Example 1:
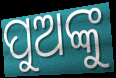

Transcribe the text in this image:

ପୁଅଙ୍କୁ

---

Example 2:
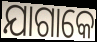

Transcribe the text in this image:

ଯାଗାକେ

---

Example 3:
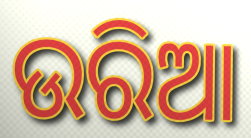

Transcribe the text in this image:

ଉରିଆ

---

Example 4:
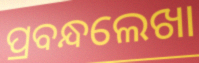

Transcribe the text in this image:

ପ୍ରବନ୍ଧଲେଖା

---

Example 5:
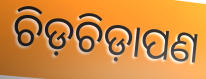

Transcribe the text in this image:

ଚିଡ଼ଚିଡ଼ାପଣ